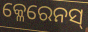
କ୍ଳେରେନସ୍